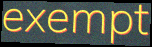
exempt